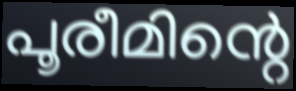
പൂരീമിന്റെ